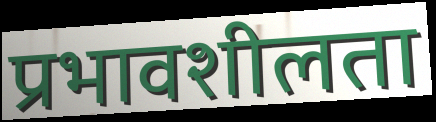
प्रभावशीलता